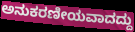
ಅನುಕರಣೀಯವಾದದ್ದು